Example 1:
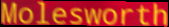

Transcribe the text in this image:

Molesworth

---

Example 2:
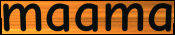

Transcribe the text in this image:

maama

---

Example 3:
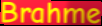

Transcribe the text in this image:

Brahme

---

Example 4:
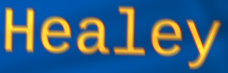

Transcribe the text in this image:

Healey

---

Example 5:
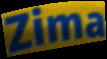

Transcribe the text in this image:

Zima